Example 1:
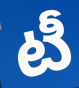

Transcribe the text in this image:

టీ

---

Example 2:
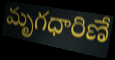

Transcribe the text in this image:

మృగధారిణే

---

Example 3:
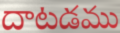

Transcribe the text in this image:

దాటడము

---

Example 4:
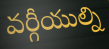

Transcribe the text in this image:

వర్గీయుల్ని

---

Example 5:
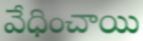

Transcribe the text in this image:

వేధించాయి